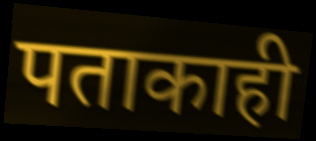
पताकाही